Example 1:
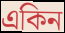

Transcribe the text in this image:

একিন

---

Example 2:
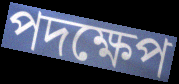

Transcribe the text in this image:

পদক্ষেপ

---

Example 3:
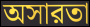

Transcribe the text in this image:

অসারতা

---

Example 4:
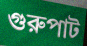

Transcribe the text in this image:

গুরুপাট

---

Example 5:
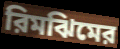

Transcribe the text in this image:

রিমঝিমের